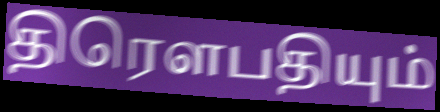
திரெளபதியும்